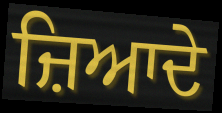
ਜ਼ਿਆਦੇ